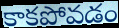
కాకపోవడం